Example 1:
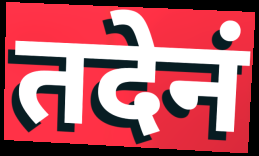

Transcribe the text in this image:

तदेनं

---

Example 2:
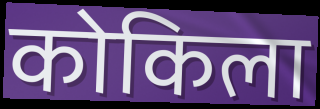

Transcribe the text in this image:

कोकिला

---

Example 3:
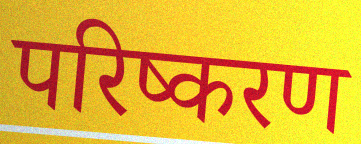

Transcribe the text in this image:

परिष्करण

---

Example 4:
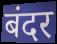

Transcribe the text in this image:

बंदर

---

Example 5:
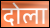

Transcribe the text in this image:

दोला